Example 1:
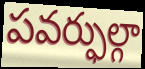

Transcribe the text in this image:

పవర్ఫుల్గా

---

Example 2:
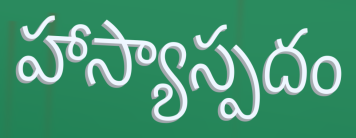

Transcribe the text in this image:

హాస్యాస్పదం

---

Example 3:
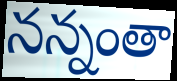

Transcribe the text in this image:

నన్నంతా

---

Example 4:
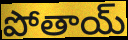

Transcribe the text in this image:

పోతాయ్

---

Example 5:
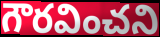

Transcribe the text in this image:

గౌరవించని